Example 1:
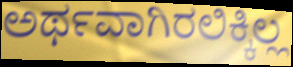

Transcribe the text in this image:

ಅರ್ಥವಾಗಿರಲಿಕ್ಕಿಲ್ಲ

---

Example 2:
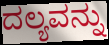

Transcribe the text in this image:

ದಲ್ಯವನ್ನು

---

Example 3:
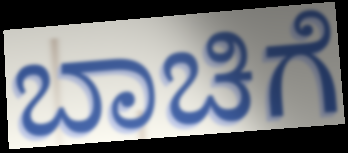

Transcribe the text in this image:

ಬಾಚಿಗೆ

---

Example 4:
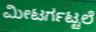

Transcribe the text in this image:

ಮೀಟರ್ಗಟ್ಟಲೆ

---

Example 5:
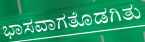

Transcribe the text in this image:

ಭಾಸವಾಗತೊಡಗಿತು